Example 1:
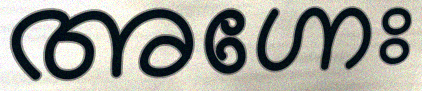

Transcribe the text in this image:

അഗ്നേഃ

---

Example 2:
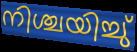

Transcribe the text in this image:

നിശ്ചയിച്ചു്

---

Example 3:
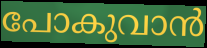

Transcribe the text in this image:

പോകുവാൻ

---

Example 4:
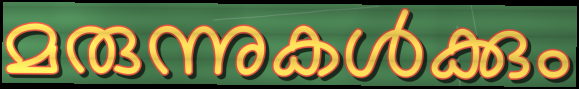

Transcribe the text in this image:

മരുന്നുകൾക്കും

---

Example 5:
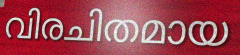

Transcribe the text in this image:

വിരചിതമായ